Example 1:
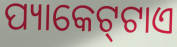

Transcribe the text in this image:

ପ୍ୟାକେଟ୍‌ଟାଏ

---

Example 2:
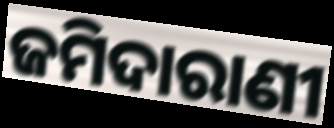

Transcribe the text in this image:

ଜମିଦାରାଣୀ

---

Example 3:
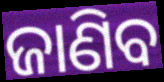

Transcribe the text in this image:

ଜାଣିବ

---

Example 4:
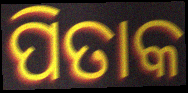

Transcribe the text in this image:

ପିତାକ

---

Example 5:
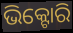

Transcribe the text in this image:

ଭିକ୍ଟୋରି